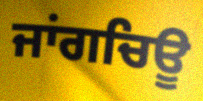
ਜਾਂਗਚਿਊ